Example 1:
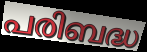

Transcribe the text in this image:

പരിബദ്ധ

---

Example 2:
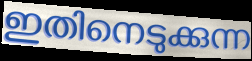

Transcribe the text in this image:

ഇതിനെടുക്കുന്ന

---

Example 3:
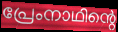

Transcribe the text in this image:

പ്രേംനാഥിന്റെ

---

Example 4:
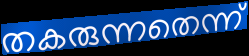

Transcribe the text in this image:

തകരുന്നതെന്ന്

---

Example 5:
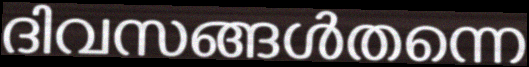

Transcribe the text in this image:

ദിവസങ്ങൾതന്നെ